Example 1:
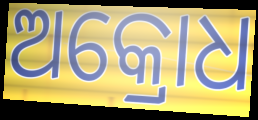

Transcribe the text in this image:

ଅକ୍ରୋଧ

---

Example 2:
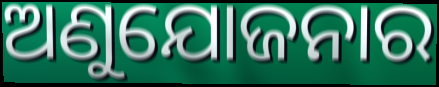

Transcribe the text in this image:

ଅଣୁଯୋଜନାର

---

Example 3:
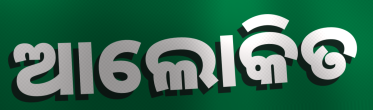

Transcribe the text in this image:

ଆଲୋକିତ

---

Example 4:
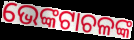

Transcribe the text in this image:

ଭେଙ୍କଟାଚଳଙ୍କ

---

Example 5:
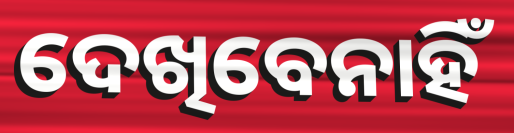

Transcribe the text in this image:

ଦେଖିବେନାହିଁ